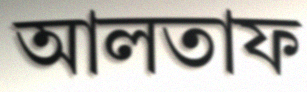
আলতাফ